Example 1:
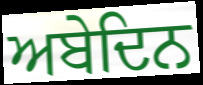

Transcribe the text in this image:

ਅਬੇਦਿਨ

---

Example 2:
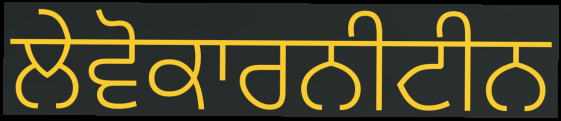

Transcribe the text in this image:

ਲੇਵੋਕਾਰਨੀਟੀਨ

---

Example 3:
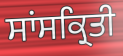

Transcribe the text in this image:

ਸਾਂਸਕ੍ਰਿਤੀ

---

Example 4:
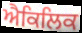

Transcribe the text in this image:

ਐਕਿਲਿਕ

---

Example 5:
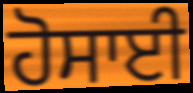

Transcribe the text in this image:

ਹੋਸਾਈ